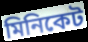
মিনিকেট